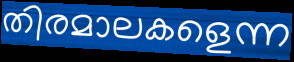
തിരമാലകളെന്ന